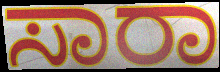
ಸಾರಾ